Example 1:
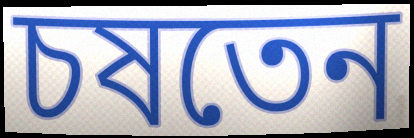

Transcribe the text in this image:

চষতেন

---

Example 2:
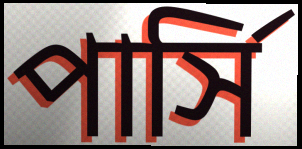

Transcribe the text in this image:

পার্সি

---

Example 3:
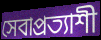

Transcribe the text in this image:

সেবাপ্রত্যাশী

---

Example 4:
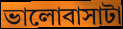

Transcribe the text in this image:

ভালোবাসাটা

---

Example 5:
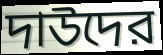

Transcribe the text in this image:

দাউদের